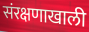
संरक्षणाखाली